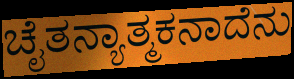
ಚೈತನ್ಯಾತ್ಮಕನಾದೆನು